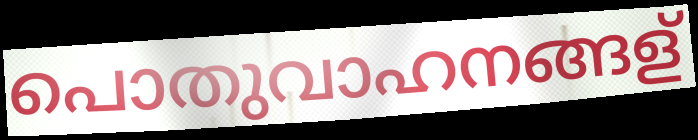
പൊതുവാഹനങ്ങള്